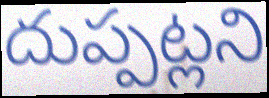
దుప్పట్లని